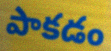
పాకడం